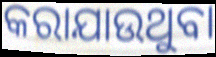
କରାଯାଉଥୁବା